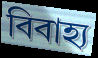
বিবাহ্য